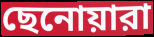
ছেনোয়ারা